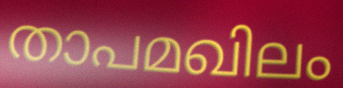
താപമഖിലം